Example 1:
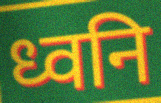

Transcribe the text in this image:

ध्‍वनि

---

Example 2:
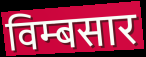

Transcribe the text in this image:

विम्बसार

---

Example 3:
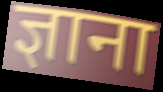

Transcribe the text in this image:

ज्ञाना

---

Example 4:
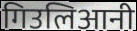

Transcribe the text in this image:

गिउलिआनी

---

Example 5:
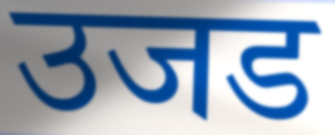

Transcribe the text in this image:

उजड